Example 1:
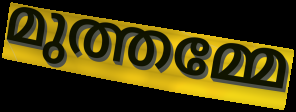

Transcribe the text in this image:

മുത്തമ്മേ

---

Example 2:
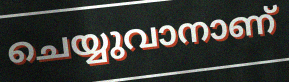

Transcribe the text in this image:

ചെയ്യുവാനാണ്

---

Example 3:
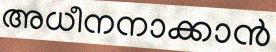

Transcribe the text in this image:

അധീനനാക്കാൻ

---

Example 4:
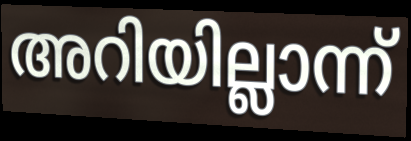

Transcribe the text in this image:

അറിയില്ലാന്ന്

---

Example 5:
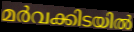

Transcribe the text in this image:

മർവക്കിടയിൽ